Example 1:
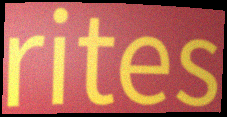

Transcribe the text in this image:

rites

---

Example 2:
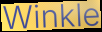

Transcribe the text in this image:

Winkle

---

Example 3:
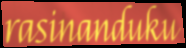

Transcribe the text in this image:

rasinanduku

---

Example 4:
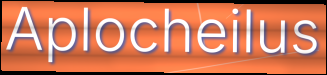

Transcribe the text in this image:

Aplocheilus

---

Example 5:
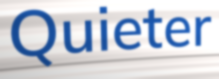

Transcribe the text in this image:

Quieter